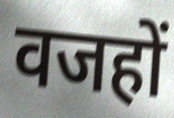
वजहों